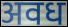
अवध